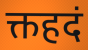
क्तहदं